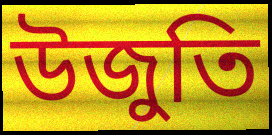
উজুতি